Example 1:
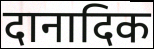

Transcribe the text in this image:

दानादिक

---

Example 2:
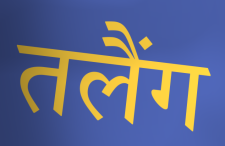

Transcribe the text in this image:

तलैंग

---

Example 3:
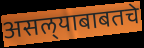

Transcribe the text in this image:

असल्याबाबतचे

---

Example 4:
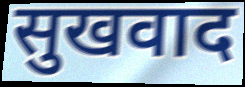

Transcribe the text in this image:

सुखवाद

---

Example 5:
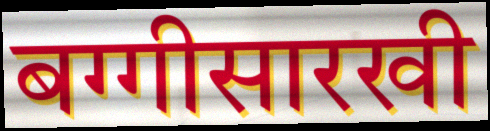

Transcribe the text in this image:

बग्गीसारखी